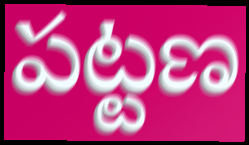
పట్టణ